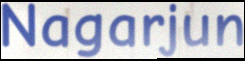
Nagarjun